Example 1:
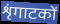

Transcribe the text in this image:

शृंगाटकों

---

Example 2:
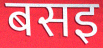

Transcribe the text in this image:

बसइ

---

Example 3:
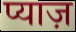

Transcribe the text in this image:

प्याज़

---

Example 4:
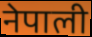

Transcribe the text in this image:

नेपाली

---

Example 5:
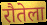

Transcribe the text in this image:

रौतेला